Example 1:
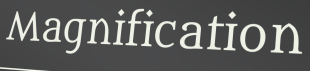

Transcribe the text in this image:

Magnification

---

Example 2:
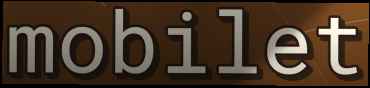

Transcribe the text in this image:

mobilet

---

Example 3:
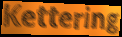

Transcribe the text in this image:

Kettering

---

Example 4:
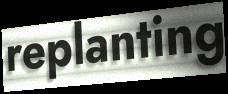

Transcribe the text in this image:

replanting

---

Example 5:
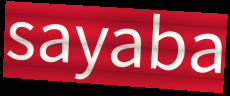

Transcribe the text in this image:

sayaba